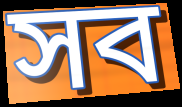
সব